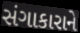
સંગાકારાને